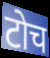
टोच